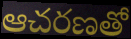
ఆచరణతో